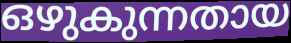
ഒഴുകുന്നതായ